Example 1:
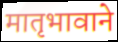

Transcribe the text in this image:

मातृभावाने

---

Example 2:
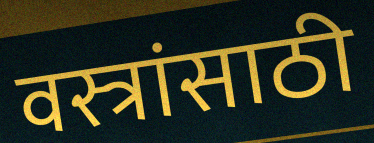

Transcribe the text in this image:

वस्त्रांसाठी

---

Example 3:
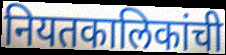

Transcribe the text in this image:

नियतकालिकांची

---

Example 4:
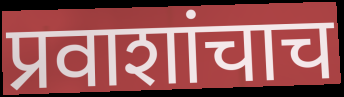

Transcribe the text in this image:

प्रवाशांचाच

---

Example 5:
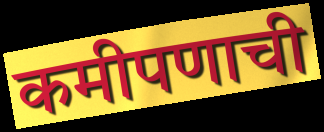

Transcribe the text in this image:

कमीपणाची